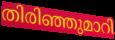
തിരിഞ്ഞുമാറി